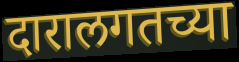
दारालगतच्या